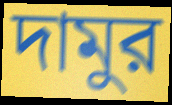
দামুর